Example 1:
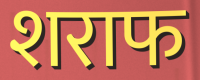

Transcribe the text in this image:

शराफ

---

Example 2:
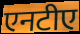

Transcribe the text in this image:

एनटीए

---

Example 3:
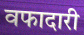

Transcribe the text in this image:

वफादारी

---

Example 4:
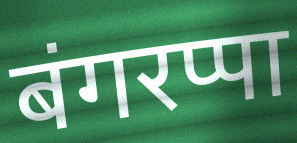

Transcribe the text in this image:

बंगरप्पा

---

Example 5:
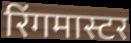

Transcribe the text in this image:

रिंगमास्टर